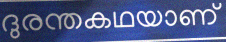
ദുരന്തകഥയാണ്